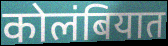
कोलंबियात